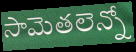
సామెతలెన్నో